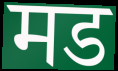
मड